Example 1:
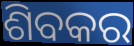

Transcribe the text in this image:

ଶିବକର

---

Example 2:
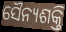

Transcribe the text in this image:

ସୈନ୍ୟଶକ୍ତି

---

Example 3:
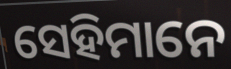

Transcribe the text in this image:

ସେହିମାନେ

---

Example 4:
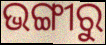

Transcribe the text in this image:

ଭଙ୍ଗୀରୁ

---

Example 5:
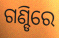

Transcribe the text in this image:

ଗଣ୍ଡିରେ